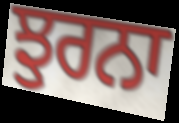
ਝੁਰਨਾ